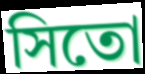
সিতো